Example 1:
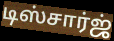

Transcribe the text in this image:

டிஸ்சார்ஜ்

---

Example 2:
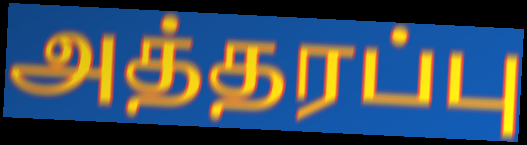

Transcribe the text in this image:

அத்தரப்பு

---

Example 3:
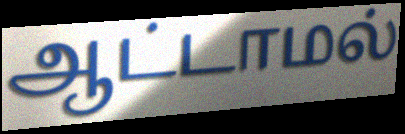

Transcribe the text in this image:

ஆட்டாமல்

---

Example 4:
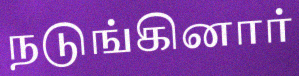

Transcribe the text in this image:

நடுங்கினார்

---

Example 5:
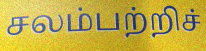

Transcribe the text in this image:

சலம்பற்றிச்